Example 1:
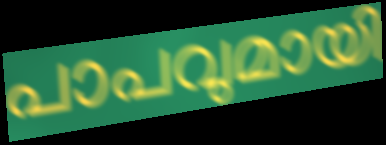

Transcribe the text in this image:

പാപവുമായി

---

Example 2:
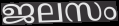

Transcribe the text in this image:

ജലസം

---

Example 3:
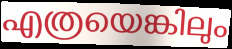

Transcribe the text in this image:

എത്രയെങ്കിലും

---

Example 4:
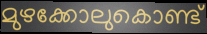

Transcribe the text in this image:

മുഴക്കോലുകൊണ്ട്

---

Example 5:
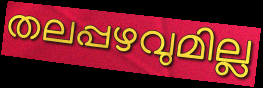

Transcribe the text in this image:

തലപ്പഴവുമില്ല